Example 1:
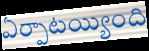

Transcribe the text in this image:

ఏర్పాటయ్యింది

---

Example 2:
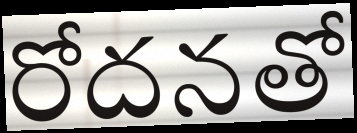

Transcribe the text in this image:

రోదనతో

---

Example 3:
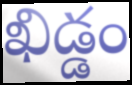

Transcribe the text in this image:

ఖిడ్డం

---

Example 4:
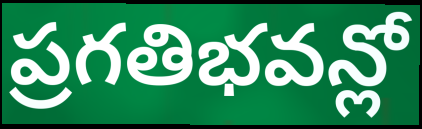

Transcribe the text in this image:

ప్రగతిభవన్లో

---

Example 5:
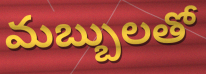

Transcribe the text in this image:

మబ్బులతో